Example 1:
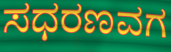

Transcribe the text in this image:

ಸಧರಣವಗ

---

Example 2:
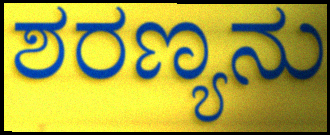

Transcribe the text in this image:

ಶರಣ್ಯನು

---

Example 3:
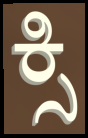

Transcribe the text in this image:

ಕ್ಸಿ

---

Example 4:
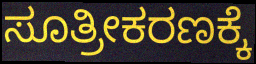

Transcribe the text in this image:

ಸೂತ್ರೀಕರಣಕ್ಕೆ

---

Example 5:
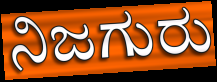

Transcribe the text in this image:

ನಿಜಗುರು